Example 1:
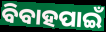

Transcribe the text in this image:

ବିବାହପାଇଁ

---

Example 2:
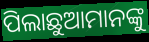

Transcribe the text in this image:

ପିଲାଛୁଆମାନଙ୍କୁ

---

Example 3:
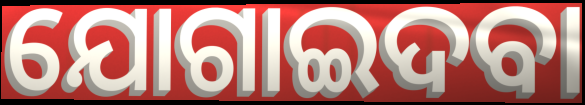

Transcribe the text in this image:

ଯୋଗାଇଦବା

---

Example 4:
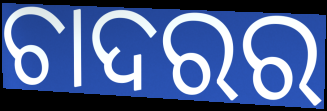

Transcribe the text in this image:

ଚାଦରର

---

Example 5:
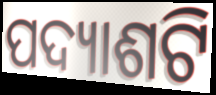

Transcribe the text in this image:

ପଦ୍ୟାଶଟି